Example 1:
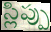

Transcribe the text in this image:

స్లిప్పు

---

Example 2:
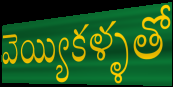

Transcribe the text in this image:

వెయ్యికళ్ళతో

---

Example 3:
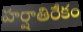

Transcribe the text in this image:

హర్షాతిరేకం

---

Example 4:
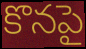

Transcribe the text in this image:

కొనపై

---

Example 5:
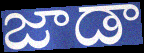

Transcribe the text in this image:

జాడా